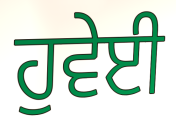
ਹੁਵੇਈ